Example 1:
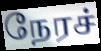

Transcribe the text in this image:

நேரச்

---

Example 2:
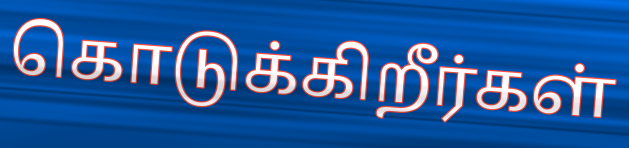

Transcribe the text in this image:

கொடுக்கிறீர்கள்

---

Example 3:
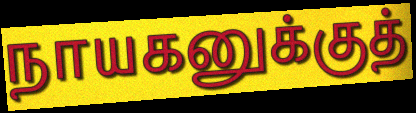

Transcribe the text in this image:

நாயகனுக்குத்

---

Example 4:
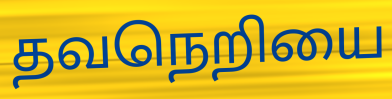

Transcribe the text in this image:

தவநெறியை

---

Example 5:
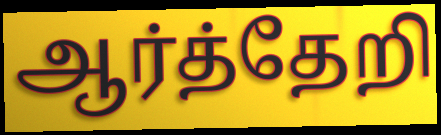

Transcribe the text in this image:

ஆர்த்தேறி